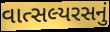
વાત્સલ્યરસનું